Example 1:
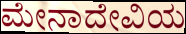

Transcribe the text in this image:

ಮೇನಾದೇವಿಯ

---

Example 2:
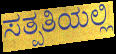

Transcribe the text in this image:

ಸತ್ಪತಿಯಲ್ಲಿ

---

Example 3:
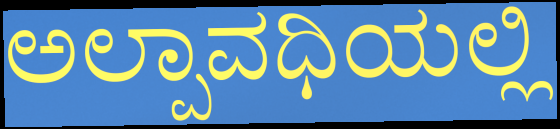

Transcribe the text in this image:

ಅಲ್ಪಾವಧಿಯಲ್ಲಿ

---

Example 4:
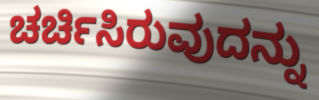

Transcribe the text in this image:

ಚರ್ಚಿಸಿರುವುದನ್ನು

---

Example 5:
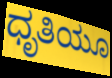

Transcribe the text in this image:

ಧೃತಿಯೂ